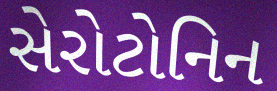
સેરોટોનિન